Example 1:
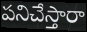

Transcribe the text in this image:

పనిచేస్తారా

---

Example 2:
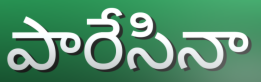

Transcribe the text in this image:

పారేసినా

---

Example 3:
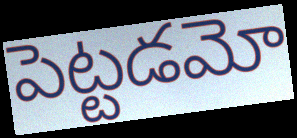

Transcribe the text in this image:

పెట్టడమో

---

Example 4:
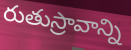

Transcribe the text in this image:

రుతుస్రావాన్ని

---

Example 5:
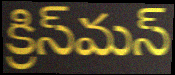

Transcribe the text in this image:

క్రిస్‌మస్